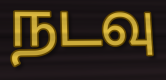
நடவு